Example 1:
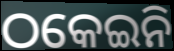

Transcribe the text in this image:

ଠକେଇନି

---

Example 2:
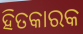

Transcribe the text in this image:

ହିତକାରକ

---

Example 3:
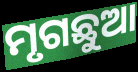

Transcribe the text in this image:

ମୃଗଛୁଆ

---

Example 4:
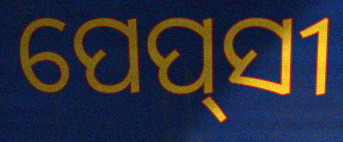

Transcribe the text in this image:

ପେପ୍‌ସୀ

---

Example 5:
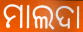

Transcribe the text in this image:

ମାଲଦା